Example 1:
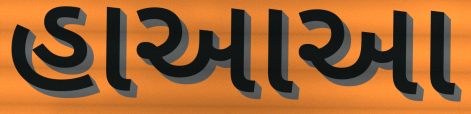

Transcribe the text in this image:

હાઆઆ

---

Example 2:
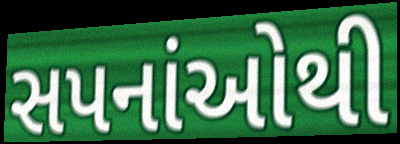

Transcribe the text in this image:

સપનાંઓથી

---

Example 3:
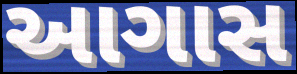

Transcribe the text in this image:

આગાસ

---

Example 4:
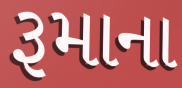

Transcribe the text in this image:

રૂમાના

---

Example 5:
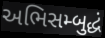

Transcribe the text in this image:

અભિસમ્બુદ્ધં